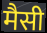
मैसी